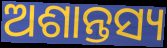
ଅଶାନ୍ତସ୍ୟ